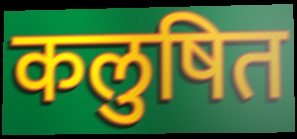
कलुषित